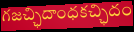
గజచ్ఛిదాంధకచ్ఛిదం